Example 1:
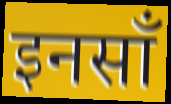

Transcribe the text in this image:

इनसाँ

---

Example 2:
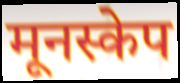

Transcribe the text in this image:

मूनस्केप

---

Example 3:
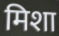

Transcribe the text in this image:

मिशा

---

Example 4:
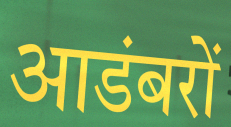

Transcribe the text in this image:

आडंबरों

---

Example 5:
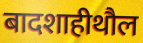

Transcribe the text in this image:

बादशाहीथौल